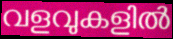
വളവുകളിൽ